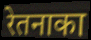
रेतनाका